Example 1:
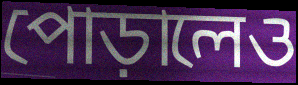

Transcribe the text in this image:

পোড়ালেও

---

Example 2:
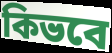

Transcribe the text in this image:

কিভবে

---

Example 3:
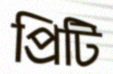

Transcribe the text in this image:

প্রিটি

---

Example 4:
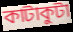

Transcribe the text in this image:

কাটাকুটা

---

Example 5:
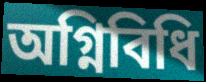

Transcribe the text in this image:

অগ্নিবিধি